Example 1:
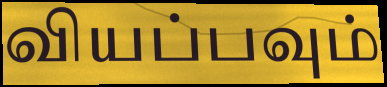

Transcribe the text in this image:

வியப்பவும்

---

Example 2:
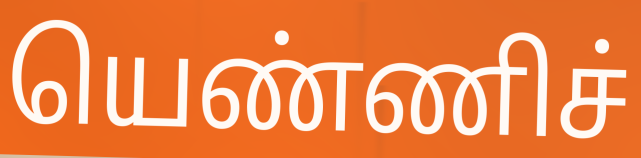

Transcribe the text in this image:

யெண்ணிச்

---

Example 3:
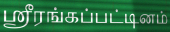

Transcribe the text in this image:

ஸ்ரீரங்கப்பட்டினம்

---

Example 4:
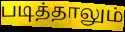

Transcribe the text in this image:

படித்தாலும்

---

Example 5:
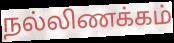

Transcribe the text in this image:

நல்லிணக்கம்